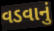
વડવાનું